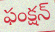
ఫంక్షన్